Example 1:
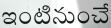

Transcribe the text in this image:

ఇంటినుంచే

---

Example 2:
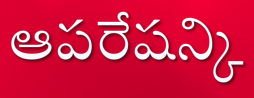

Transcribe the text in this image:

ఆపరేషన్కి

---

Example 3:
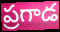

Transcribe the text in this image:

ప్రగాడ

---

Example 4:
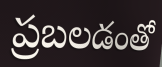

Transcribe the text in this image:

ప్రబలడంతో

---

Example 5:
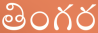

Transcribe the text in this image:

తింగర